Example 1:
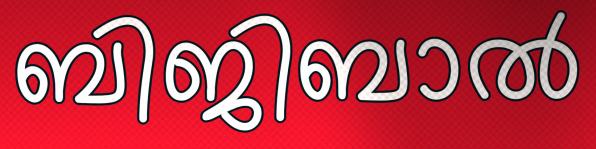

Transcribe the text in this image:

ബിജിബാൽ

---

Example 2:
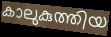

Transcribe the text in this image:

കാലുകുത്തിയ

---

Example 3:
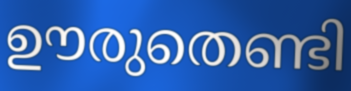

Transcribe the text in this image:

ഊരുതെണ്ടി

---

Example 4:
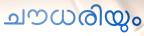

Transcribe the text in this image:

ചൗധരിയും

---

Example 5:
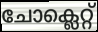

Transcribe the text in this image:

ചോക്ലെറ്റ്